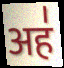
अह॑